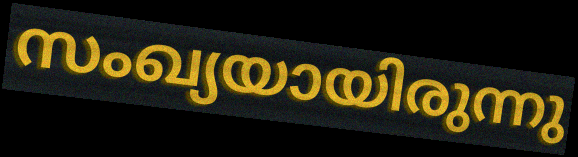
സംഖ്യയായിരുന്നു